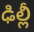
ఢిల్లీ